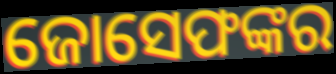
ଜୋସେଫଙ୍କର